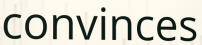
convinces